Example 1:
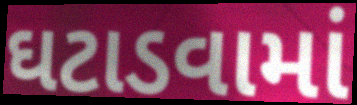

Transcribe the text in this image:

ઘટાડવામાં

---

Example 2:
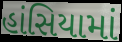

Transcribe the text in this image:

હાંસિયામાં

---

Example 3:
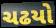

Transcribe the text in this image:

ચઢયો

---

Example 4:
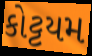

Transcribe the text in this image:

કોટ્ટયમ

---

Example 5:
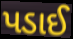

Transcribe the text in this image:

પડાઈ